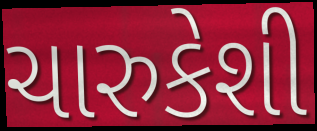
ચારુકેશી